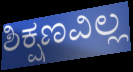
ಶಿಕ್ಷಣವಿಲ್ಲ